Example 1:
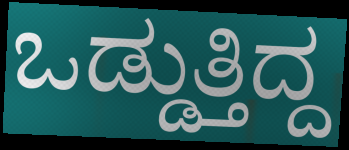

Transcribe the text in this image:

ಒಡ್ಡುತ್ತಿದ್ದ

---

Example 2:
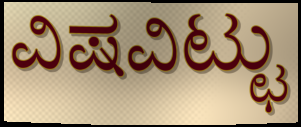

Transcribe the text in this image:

ವಿಷವಿಟ್ಟು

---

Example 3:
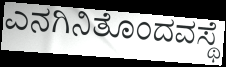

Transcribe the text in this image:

ಎನಗಿನಿತೊಂದವಸ್ಥೆ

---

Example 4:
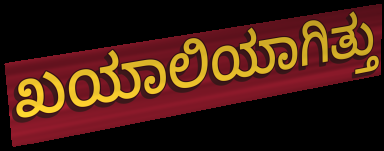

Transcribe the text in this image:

ಖಯಾಲಿಯಾಗಿತ್ತು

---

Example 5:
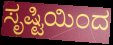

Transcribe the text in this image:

ಸೃಷ್ಟಿಯಿಂದ